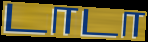
டாடா